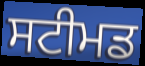
ਸਟੀਮਡ